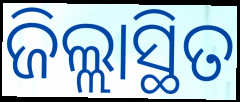
ଜିଲ୍ଲାସ୍ଥିତ